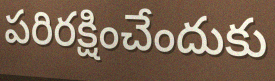
పరిరక్షించేందుకు